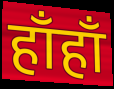
हाँहाँ